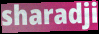
sharadji